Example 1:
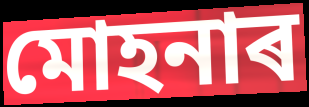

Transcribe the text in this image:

মোহনাৰ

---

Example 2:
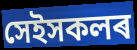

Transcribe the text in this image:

সেইসকলৰ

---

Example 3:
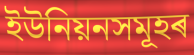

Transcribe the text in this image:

ইউনিয়নসমূহৰ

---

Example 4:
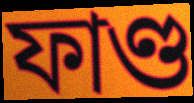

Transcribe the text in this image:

ফাণ্ড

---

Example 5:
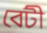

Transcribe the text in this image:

বেটী